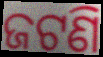
ଜଟଣି